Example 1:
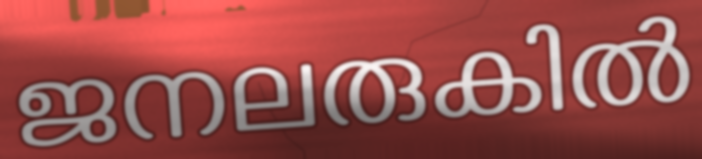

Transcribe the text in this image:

ജനലരുകിൽ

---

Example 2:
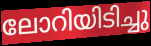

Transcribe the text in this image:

ലോറിയിടിച്ചു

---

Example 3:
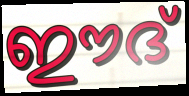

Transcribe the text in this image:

ഈദ്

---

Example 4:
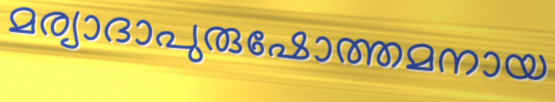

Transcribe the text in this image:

മര്യാദാപുരുഷോത്തമനായ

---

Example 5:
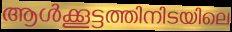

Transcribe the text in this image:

ആൾക്കൂട്ടത്തിനിടയിലെ